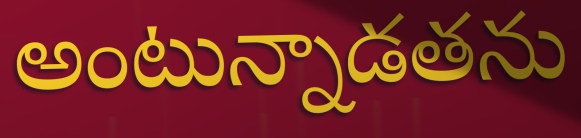
అంటున్నాడతను